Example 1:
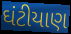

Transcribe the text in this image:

ઘંટીયાણ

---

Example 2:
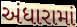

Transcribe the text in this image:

અંધારામાં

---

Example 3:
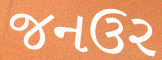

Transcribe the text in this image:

જનઉર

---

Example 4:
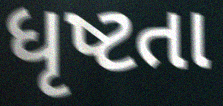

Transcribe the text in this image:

ધૃષ્ટતા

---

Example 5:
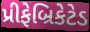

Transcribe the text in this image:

પ્રીફેબ્રિકેટેડ